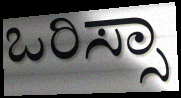
ಒರಿಸ್ಸಾ